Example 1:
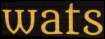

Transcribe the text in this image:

wats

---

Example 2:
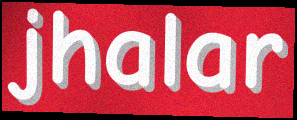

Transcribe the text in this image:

jhalar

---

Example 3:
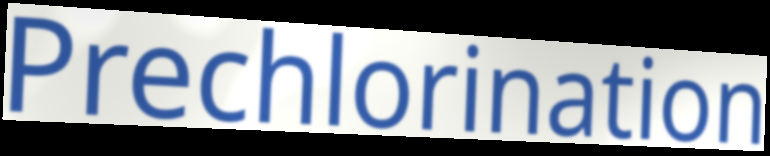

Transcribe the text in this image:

Prechlorination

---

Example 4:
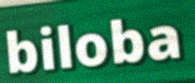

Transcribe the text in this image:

biloba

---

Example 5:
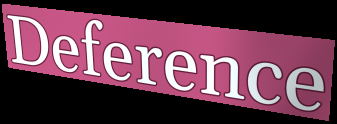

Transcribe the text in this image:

Deference